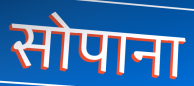
सोपाना